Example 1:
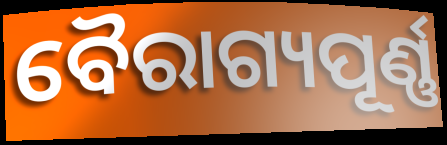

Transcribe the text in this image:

ବୈରାଗ୍ୟପୂର୍ଣ୍ଣ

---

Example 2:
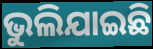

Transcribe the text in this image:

ଭୁଲିଯାଇଛି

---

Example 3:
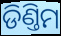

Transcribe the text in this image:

ଡିଣ୍ତିମ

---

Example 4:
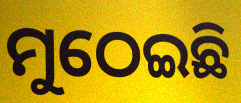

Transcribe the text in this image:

ମୁଠେଇଛି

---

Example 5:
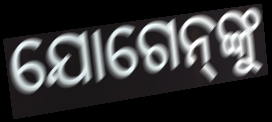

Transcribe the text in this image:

ଯୋଗେନ୍‌ଙ୍କୁ